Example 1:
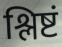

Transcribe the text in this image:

श्लिष्टं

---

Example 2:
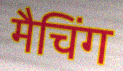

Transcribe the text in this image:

मैचिंग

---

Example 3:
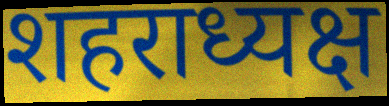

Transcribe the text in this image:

शहराध्यक्ष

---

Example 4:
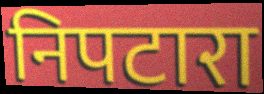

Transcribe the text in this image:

निपटारा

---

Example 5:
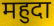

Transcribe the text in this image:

महुदा